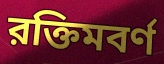
রক্তিমবর্ণ